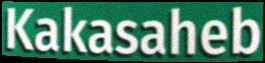
Kakasaheb